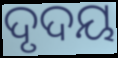
ଦୃଦୟ